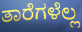
ತಾರೆಗಳೆಲ್ಲ